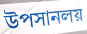
উপসানলয়